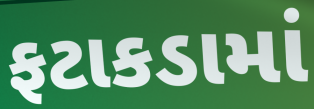
ફટાકડામાં